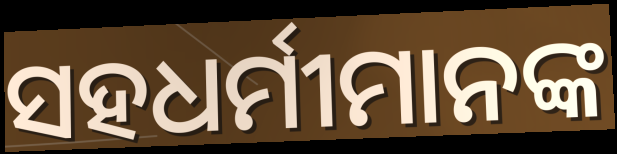
ସହଧର୍ମୀମାନଙ୍କ